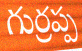
గుర్రప్ప